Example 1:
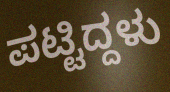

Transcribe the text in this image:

ಪಟ್ಟಿದ್ದಳು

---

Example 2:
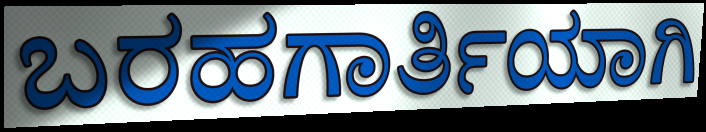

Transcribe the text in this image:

ಬರಹಗಾರ್ತಿಯಾಗಿ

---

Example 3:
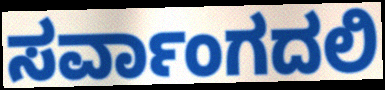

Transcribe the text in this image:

ಸರ್ವಾಂಗದಲಿ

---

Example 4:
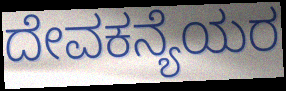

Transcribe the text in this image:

ದೇವಕನ್ಯೆಯರ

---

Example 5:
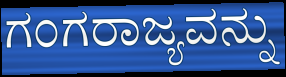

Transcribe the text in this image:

ಗಂಗರಾಜ್ಯವನ್ನು